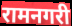
रामनगरी